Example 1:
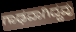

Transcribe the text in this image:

ಗಾಢವಾಗಿದ್ದವು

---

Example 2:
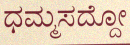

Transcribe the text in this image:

ಧಮ್ಮಸದ್ದೋ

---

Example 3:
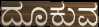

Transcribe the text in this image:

ದೂಕುವ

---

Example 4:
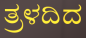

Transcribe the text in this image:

ತ್ರಳದಿದ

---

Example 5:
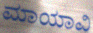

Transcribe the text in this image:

ಮಾಯಾವಿ